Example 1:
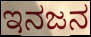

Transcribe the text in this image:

ಇನಜನ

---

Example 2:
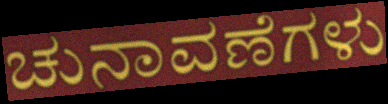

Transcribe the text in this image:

ಚುನಾವಣೆಗಳು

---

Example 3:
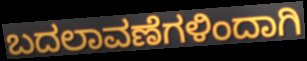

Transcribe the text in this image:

ಬದಲಾವಣೆಗಳಿಂದಾಗಿ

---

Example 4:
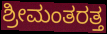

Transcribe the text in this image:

ಶ್ರೀಮಂತರತ್ತ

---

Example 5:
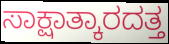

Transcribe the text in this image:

ಸಾಕ್ಷಾತ್ಕಾರದತ್ತ